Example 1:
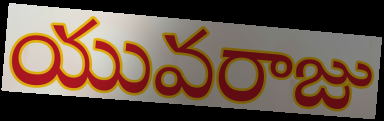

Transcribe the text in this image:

యువరాజు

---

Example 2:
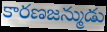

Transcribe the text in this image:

కారణజన్ముడు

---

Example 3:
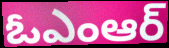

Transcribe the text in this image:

ఓఎంఆర్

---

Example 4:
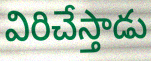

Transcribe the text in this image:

విరిచేస్తాడు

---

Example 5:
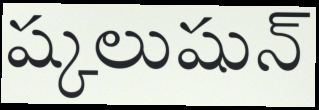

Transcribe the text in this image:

ష్కలుషున్